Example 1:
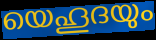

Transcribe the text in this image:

യെഹൂദയും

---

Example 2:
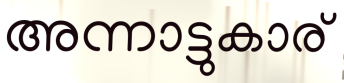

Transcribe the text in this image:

അന്നാട്ടുകാര്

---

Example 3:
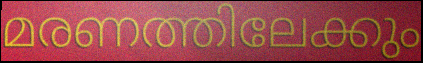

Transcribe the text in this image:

മരണത്തിലേക്കും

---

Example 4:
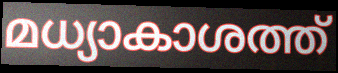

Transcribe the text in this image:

മധ്യാകാശത്ത്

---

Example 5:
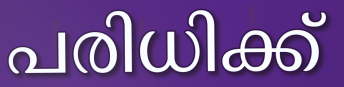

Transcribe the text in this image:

പരിധിക്ക്